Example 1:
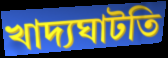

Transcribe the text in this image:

খাদ্যঘাটতি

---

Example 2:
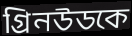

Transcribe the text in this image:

গ্রিনউডকে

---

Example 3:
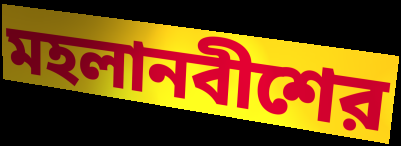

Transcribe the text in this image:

মহলানবীশের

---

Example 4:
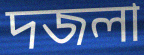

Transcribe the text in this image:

দজলা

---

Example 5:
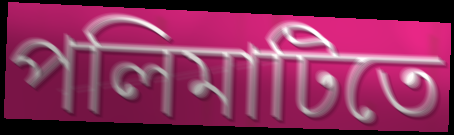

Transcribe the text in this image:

পলিমাটিতে